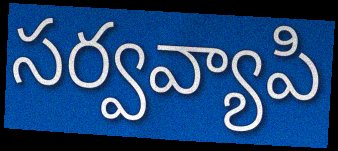
సర్వవ్యాపి